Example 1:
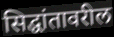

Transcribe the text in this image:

सिद्धांतावरील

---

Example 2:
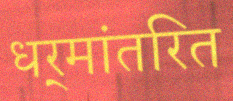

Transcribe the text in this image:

धर्मांतरित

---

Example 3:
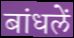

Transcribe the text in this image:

बांधलें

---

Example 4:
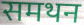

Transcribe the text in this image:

समथन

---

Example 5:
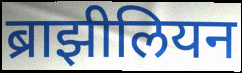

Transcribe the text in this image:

ब्राझीलियन